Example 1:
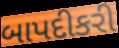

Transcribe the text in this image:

બાપદીકરી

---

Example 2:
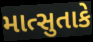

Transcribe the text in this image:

માત્સુતાકે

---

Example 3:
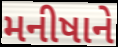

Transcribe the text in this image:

મનીષાને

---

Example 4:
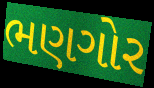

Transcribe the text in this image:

ભણગોર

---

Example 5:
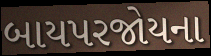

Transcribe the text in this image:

બાયપરજોયના